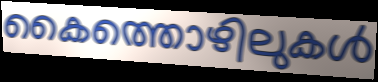
കൈത്തൊഴിലുകൾ